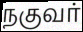
நகுவர்